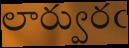
లార్వురఁ